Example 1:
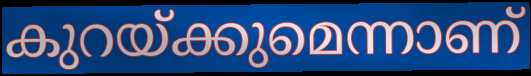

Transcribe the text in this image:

കുറയ്ക്കുമെന്നാണ്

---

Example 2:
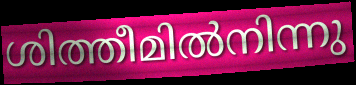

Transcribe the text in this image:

ശിത്തീമിൽനിന്നു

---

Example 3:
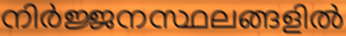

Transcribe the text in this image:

നിർജ്ജനസ്ഥലങ്ങളിൽ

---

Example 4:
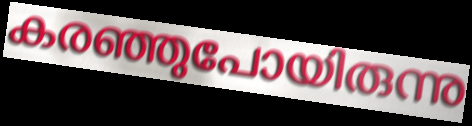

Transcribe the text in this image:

കരഞ്ഞുപോയിരുന്നു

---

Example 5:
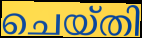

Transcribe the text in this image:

ചെയ്തി